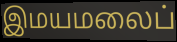
இமயமலைப்